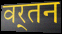
वर्तन